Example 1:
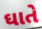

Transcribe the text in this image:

ઘાતે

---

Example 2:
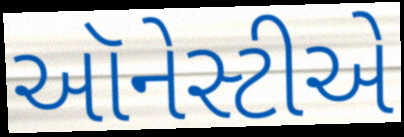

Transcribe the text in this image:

ઑનેસ્ટીએ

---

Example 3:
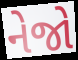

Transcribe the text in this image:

નેજો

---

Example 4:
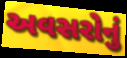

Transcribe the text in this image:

અવસરોનું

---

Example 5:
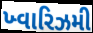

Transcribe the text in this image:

ખ્વારિઝમી